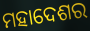
ମହାଦେଶର